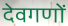
देवगणों